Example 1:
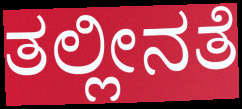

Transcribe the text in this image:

ತಲ್ಲೀನತೆ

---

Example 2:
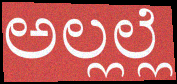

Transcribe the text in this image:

ಅಲ್ಲಲ್ಲೆ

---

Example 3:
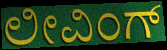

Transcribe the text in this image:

ಲೀವಿಂಗ್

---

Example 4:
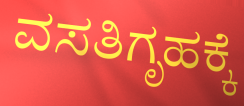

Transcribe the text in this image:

ವಸತಿಗೃಹಕ್ಕೆ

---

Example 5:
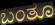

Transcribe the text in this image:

ಬಂತೂ